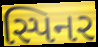
સ્પિનર